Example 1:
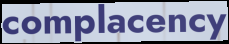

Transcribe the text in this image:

complacency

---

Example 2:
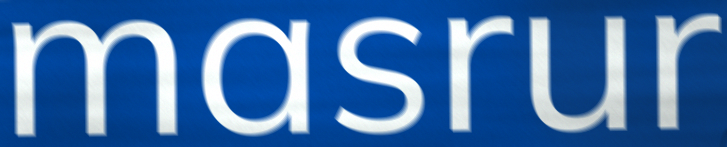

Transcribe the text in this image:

masrur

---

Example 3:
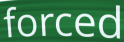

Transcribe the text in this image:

forced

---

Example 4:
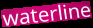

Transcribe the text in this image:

waterline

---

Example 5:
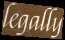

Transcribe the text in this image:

legally